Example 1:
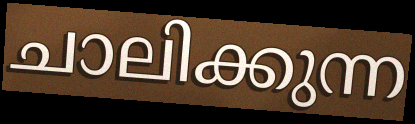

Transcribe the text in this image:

ചാലിക്കുന്ന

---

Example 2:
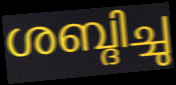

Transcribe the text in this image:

ശബ്ദിച്ചു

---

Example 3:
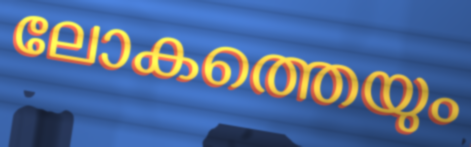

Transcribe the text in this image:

ലോകത്തെയും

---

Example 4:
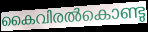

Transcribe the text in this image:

കൈവിരൽകൊണ്ടു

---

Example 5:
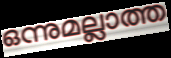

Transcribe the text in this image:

ഒന്നുമല്ലാത്ത